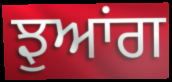
ਝੁਆਂਗ